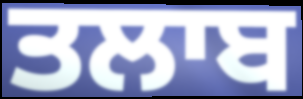
ਤਲਾਬ